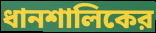
ধানশালিকের